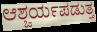
ಆಶ್ಚರ್ಯಪಡುತ್ತ